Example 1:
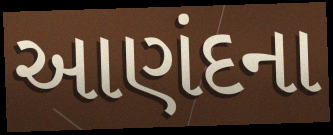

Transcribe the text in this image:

આણંદના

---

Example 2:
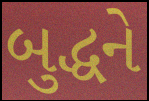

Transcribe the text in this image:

બુદ્ધને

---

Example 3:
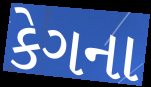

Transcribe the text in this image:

કેગના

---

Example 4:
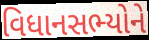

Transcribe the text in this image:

વિધાનસભ્યોને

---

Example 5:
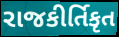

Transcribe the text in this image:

રાજકીર્તિકૃત